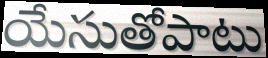
యేసుతోపాటు